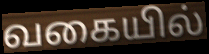
வகையில்